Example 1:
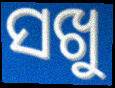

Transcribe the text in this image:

ସଖୁ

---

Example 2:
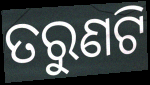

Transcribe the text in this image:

ତରୁଣଟି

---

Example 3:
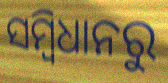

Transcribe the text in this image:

ସମ୍ବିଧାନରୁ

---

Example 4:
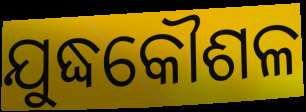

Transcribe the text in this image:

ଯୁଦ୍ଧକୌଶଳ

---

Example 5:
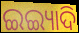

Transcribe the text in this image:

ଇଇ୍ୟାଦି